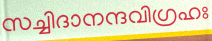
സച്ചിദാനന്ദവിഗ്രഹഃ